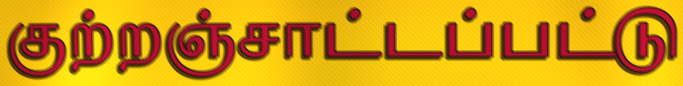
குற்றஞ்சாட்டப்பட்டு